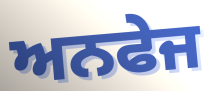
ਅਨਫੇਜ